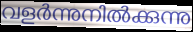
വളർന്നുനിൽക്കുന്നു